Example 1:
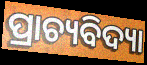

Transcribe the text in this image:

ପ୍ରାଚ୍ୟବିଦ୍ୟା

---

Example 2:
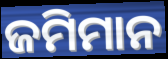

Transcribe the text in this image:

ଜମିମାନ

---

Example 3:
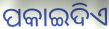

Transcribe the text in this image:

ପକାଇଦିଏ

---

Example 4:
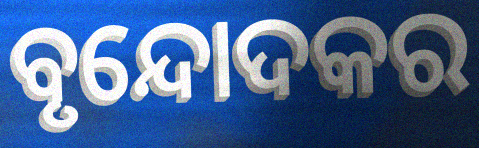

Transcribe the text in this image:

ବୃନ୍ଦୋଦକର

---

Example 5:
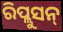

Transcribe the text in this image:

ରିପ୍ଲୁସନ୍